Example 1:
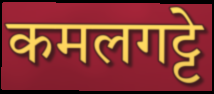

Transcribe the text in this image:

कमलगट्टे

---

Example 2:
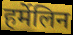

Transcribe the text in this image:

हर्मेलिन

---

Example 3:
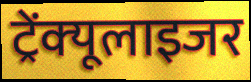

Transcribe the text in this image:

ट्रेंक्यूलाइजर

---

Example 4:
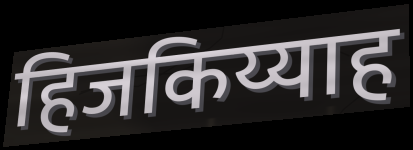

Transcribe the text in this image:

हिजकिय्याह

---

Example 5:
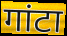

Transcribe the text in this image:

गांटा